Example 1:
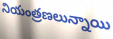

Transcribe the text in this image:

నియంత్రణలున్నాయి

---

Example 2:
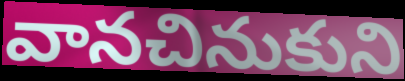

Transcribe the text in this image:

వానచినుకుని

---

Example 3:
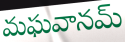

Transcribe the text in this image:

మఘవానమ్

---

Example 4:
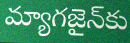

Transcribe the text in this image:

మ్యాగజైన్‌కు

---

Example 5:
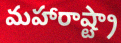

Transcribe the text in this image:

మహారాష్ట్రా